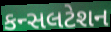
કન્સલટેશન